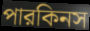
পারকিনস